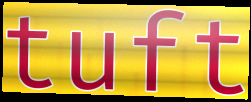
tuft